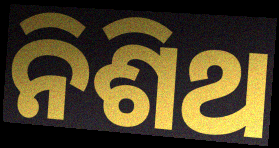
ନିଶିଥ